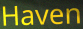
Haven